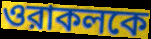
ওরাকলকে